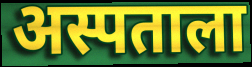
अस्पताला